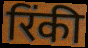
रिंकी